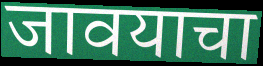
जावयाचा